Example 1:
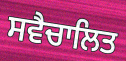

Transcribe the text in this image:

ਸਵੈਚਾਲਿਤ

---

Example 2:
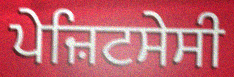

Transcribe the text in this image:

ਪੇਜ਼ਿਟਸੇਸੀ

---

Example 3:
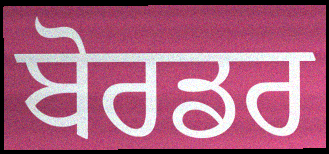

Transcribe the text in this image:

ਬੋਰਡਰ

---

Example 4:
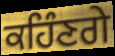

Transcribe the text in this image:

ਕਹਿੰਣਗੇ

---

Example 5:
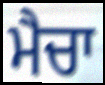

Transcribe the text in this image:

ਮੈਚਾ